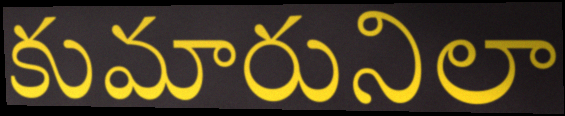
కుమారునిలా